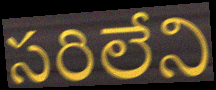
సరిలేని